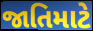
જાતિમાટે